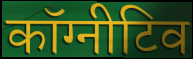
कॉग्‍नीटिव